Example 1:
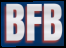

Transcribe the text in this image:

BFB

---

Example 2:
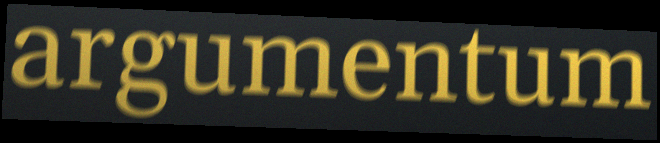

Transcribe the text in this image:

argumentum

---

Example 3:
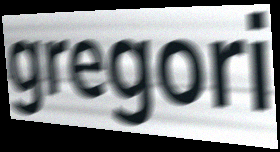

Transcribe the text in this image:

gregori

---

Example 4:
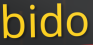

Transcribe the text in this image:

bido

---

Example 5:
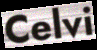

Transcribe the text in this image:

Celvi